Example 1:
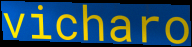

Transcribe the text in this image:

vicharo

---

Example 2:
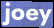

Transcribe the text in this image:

joey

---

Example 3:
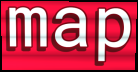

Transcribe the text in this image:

map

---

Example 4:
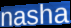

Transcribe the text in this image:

nasha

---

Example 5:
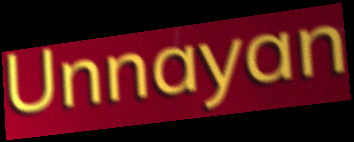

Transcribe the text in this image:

Unnayan